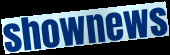
shownews